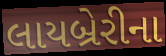
લાયબ્રેરીના